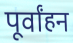
पूर्वांहन